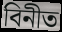
বিনীত